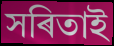
সৰিতাই